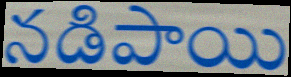
నడిపాయి